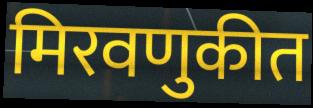
मिरवणुकीत